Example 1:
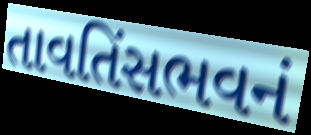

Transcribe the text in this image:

તાવતિંસભવનં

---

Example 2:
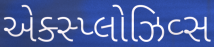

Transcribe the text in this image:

એક્સ્પ્લોઝિવ્સ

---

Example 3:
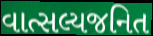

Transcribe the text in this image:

વાત્સલ્યજનિત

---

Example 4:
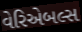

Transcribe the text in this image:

વેરિએબલ્સ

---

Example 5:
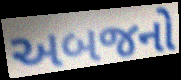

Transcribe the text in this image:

અબજનો